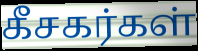
கீசகர்கள்